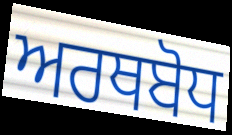
ਅਰਥਬੋਧ